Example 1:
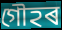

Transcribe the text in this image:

গৌহৰ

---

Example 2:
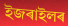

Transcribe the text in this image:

ইজৰাইলৰ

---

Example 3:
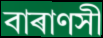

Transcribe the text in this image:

বাৰাণসী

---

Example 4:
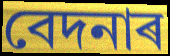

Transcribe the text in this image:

বেদনাৰ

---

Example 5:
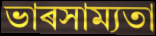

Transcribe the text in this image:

ভাৰসাম্যতা